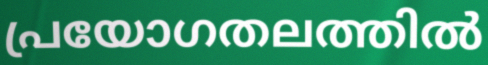
പ്രയോഗതലത്തിൽ